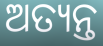
ଅତ୍ୟନ୍ତ